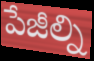
పేజీల్ని